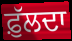
ਫ਼ੁੱਲਦਾ